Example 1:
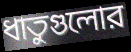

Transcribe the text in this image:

ধাতুগুলোর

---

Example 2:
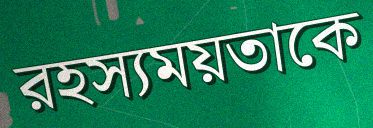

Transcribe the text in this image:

রহস্যময়তাকে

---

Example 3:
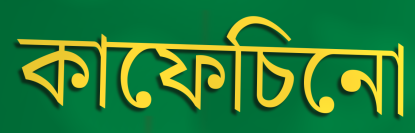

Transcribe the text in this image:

কাফেচিনো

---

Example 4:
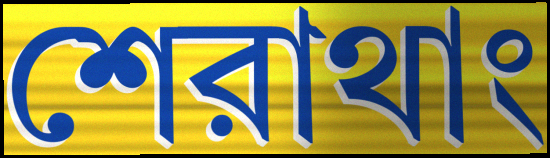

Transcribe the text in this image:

শেরাথাং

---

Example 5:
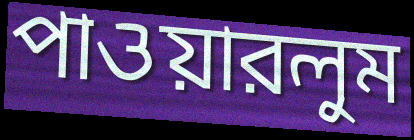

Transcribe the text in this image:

পাওয়ারলুম